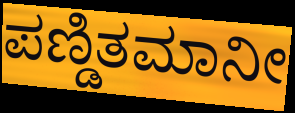
ಪಣ್ಡಿತಮಾನೀ